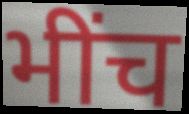
भींच